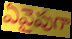
ఏవైపుగా